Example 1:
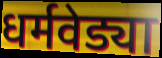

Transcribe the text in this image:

धर्मवेड्या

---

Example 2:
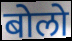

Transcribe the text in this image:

बोलो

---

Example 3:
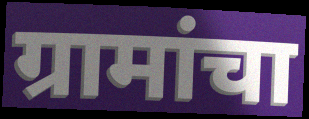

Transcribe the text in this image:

ग्रामांचा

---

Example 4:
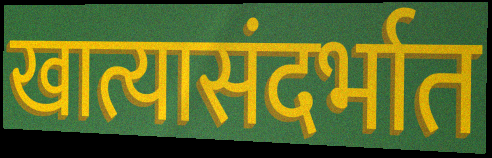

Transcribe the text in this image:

खात्यासंदर्भात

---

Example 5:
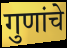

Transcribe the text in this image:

गुणांचे